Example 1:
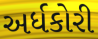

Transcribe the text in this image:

અર્ધકોરી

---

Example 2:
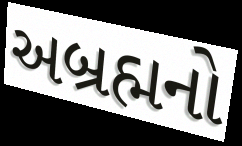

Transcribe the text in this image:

અબ્રહ્મનો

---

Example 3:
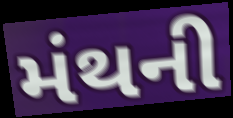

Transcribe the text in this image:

મંથની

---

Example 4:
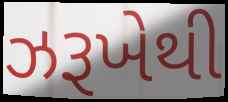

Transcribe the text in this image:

ઝરૂખેથી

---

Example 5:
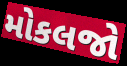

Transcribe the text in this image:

મોકલજો